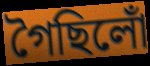
গৈছিলোঁ